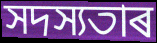
সদস্যতাৰ